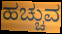
ಹಚ್ಚುವ